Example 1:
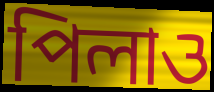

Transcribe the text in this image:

পিলাও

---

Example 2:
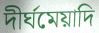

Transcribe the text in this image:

দীর্ঘমেয়াদি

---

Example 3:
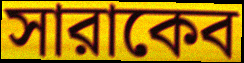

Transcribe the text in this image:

সারাকেব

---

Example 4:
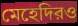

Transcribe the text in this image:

মেহেদিরও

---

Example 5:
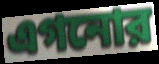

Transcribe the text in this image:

এগনোর